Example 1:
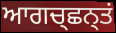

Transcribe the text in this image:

ਆਗਚ੍ਛਨ੍ਤਂ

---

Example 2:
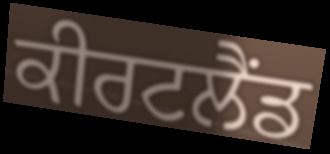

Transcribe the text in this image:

ਕੀਰਟਲੈਂਡ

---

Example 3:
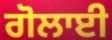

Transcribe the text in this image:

ਗੋਲਾਈ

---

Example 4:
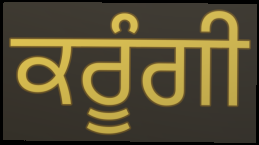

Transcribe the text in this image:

ਕਰੂੰਗੀ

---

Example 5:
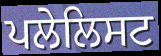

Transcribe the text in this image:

ਪਲੇਲਿਸਟ